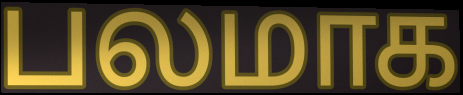
பலமாக